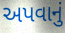
અપવાનું